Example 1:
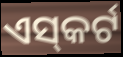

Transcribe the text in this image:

ଏସ୍‌କର୍ଟ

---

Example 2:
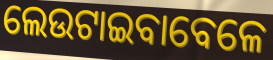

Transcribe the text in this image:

ଲେଉଟାଇବାବେଳେ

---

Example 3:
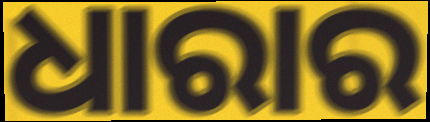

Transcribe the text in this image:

ଧାରାର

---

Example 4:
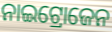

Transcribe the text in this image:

ନାଇଟ୍ରୋଜେନ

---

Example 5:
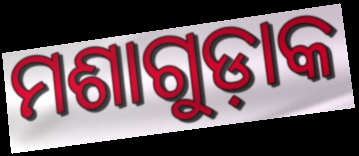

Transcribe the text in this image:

ମଶାଗୁଡ଼ାକ